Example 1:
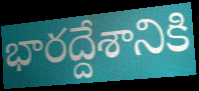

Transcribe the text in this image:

భారద్దేశానికి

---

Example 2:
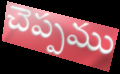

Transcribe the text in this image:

చెప్పము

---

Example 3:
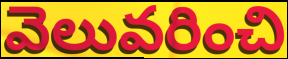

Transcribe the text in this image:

వెలువరించి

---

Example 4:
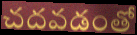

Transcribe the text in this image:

చదవడంతో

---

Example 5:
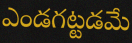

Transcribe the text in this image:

ఎండగట్టడమే